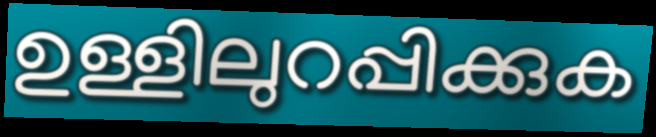
ഉള്ളിലുറപ്പിക്കുക